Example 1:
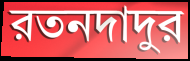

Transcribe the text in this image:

রতনদাদুর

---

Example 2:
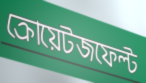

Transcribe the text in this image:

ক্রোয়েটজফেল্ট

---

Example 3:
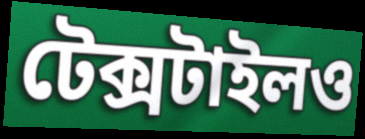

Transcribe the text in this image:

টেক্সটাইলও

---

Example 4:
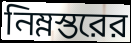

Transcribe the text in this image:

নিম্নস্তরের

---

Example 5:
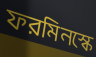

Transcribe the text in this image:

ফরমিনস্কে